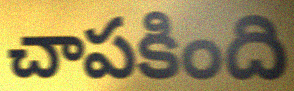
చాపకింది